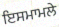
ਇਸਮਾਮਲੇ